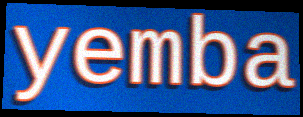
yemba